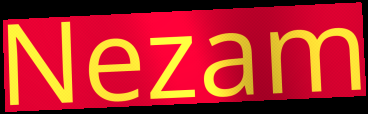
Nezam